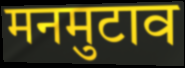
मनमुटाव